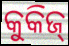
କୁକିଜ୍